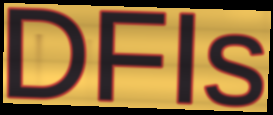
DFIs